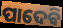
ପାଦେବି